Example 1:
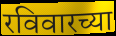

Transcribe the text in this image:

रविवारच्या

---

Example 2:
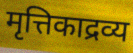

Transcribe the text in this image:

मृत्तिकाद्रव्य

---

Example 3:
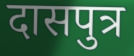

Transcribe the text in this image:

दासपुत्र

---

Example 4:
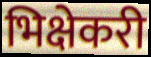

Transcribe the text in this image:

भिक्षेकरी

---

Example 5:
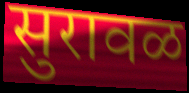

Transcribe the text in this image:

सुरावळ